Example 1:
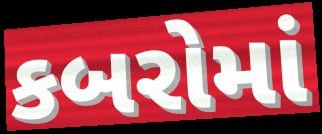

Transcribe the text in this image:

કબરોમાં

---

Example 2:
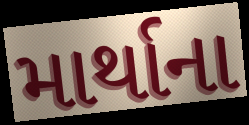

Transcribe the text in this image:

માર્થાના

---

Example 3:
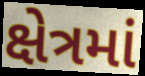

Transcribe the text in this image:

ક્ષેત્રમાં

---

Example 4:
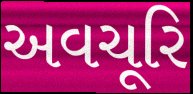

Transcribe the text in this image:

અવચૂરિ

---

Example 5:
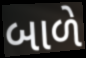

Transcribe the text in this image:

બાળે